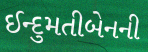
ઈન્દુમતીબેનની